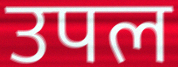
उपल